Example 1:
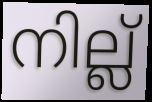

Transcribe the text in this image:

നില്ല്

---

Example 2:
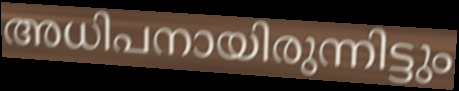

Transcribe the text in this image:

അധിപനായിരുന്നിട്ടും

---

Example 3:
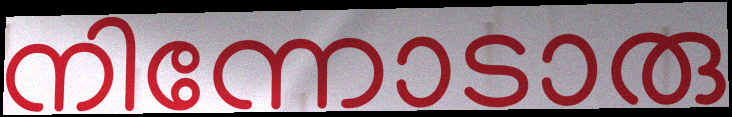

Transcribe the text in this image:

നിന്നോടാരു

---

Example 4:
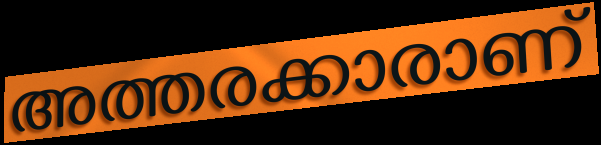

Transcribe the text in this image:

അത്തരക്കാരാണ്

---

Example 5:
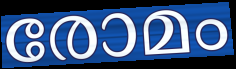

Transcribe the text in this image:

രോമം